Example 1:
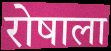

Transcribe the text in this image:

रोषाला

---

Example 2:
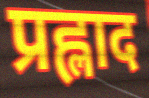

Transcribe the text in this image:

प्रह्लाद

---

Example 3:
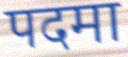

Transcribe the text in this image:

पदमा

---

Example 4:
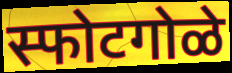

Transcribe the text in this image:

स्फोटगोळे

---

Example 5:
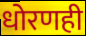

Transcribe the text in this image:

धोरणही